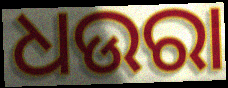
ଧଉରା